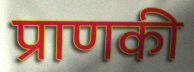
प्राणकी